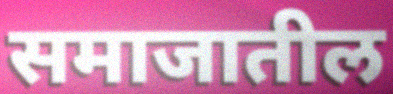
समाजातील